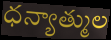
ధన్యాత్ముల